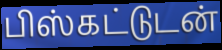
பிஸ்கட்டுடன்